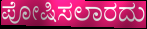
ಪೋಷಿಸಲಾರದು